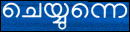
ചെയ്യുന്നെ